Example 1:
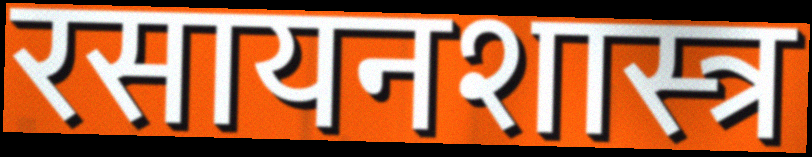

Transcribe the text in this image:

रसायनशास्त्र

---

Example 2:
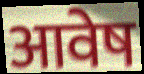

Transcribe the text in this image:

आवेष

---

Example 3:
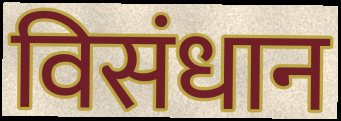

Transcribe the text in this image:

विसंधान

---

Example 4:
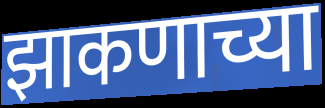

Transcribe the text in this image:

झाकणाच्या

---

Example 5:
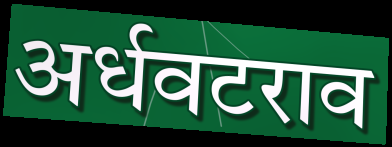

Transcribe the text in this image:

अर्धवटराव